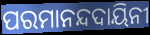
ପରମାନନ୍ଦଦାୟିନୀ